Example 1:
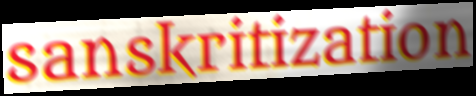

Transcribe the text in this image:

sanskritization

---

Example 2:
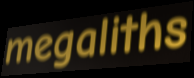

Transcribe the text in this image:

megaliths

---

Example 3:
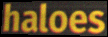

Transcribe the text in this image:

haloes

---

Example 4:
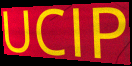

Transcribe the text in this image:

UCIP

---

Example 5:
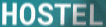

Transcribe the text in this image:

HOSTEL